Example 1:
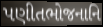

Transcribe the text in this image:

પણીતભોજનાનિ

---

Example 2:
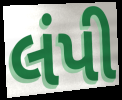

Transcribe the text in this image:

લંપી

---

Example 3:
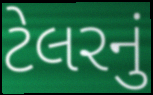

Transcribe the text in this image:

ટેલરનું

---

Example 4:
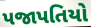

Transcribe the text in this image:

પજાપતિયો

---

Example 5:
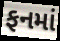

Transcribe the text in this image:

ફનમાં